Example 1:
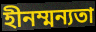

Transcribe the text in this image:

হীনম্মন্যতা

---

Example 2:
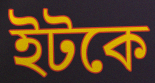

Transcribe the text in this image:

ইটকে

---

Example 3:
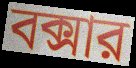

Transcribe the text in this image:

বক্সার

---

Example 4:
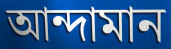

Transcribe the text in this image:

আন্দামান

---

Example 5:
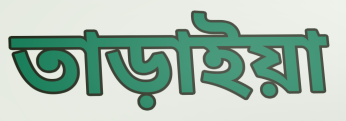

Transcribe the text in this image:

তাড়াইয়া